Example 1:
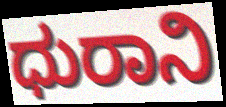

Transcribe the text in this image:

ಧುರಾನಿ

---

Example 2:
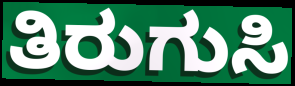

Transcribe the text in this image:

ತಿರುಗುಸಿ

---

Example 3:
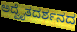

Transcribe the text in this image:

ಅದ್ವೈತದರ್ಶನದ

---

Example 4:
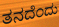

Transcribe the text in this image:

ತನದೆಂದು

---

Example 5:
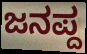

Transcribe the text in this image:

ಜನಪ್ದ